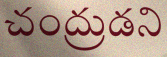
చంద్రుడని